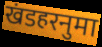
खंडहरनुमा